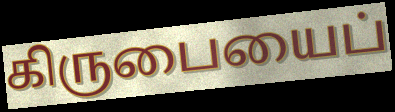
கிருபையைப்